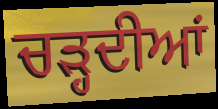
ਚੜ੍ਹਦੀਆਂ